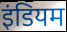
इंडियम